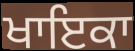
ਖਾਇਕਾ